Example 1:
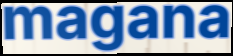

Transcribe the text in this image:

magana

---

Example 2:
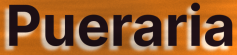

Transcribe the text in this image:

Pueraria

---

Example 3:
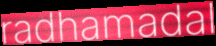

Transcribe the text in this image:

radhamadal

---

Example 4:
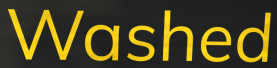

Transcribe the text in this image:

Washed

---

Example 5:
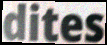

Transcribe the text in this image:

dites